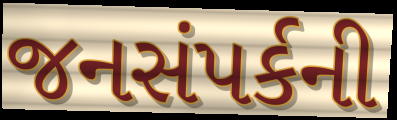
જનસંપર્કની